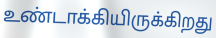
உண்டாக்கியிருக்கிறது